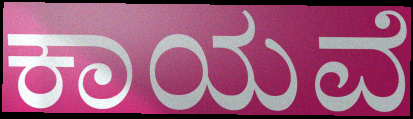
ಕಾಯವೆ